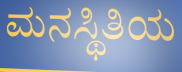
ಮನಸ್ಥಿತಿಯ